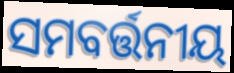
ସମବର୍ତ୍ତନୀୟ